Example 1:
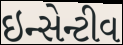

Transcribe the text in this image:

ઇન્સેન્ટીવ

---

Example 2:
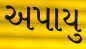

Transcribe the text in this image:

અપાયુ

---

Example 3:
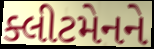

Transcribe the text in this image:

ક્લીટમેનને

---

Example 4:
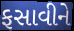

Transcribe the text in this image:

ફસાવીને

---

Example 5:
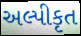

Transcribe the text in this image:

અલ્પીકૃત